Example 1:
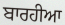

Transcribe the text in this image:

ਬਾਰਹੀਆ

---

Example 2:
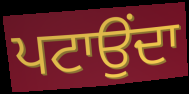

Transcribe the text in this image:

ਪਟਾਉਂਦਾ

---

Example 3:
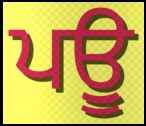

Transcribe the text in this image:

ਪਉੂ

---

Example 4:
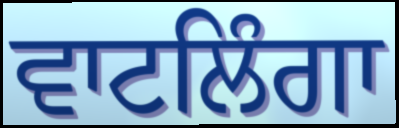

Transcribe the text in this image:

ਵਾਟਲਿੰਗਾ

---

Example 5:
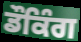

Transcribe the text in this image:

ਡੌਕਿੰਗ